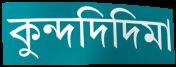
কুন্দদিদিমা